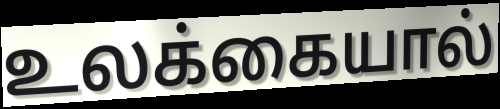
உலக்கையால்